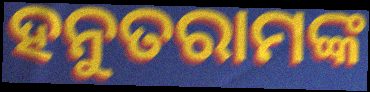
ହନୁତରାମଙ୍କ